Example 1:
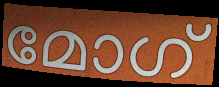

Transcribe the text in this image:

മോഗ്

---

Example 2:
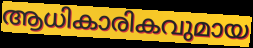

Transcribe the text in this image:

ആധികാരികവുമായ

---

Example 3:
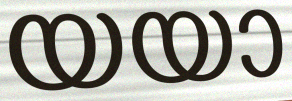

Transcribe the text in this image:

യയാ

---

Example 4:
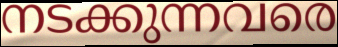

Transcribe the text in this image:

നടക്കുന്നവരെ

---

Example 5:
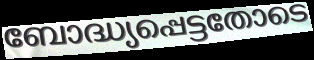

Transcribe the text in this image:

ബോദ്ധ്യപ്പെട്ടതോടെ